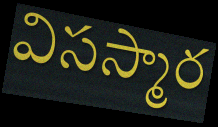
విసస్మార